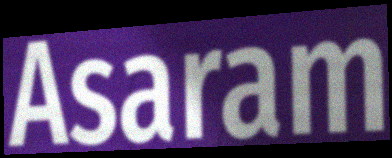
Asaram